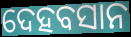
ଦେହବସାନ